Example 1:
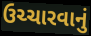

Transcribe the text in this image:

ઉચ્ચારવાનું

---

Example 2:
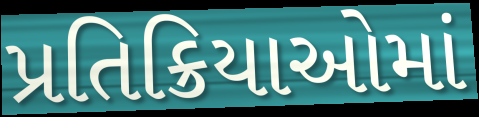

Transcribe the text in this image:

પ્રતિક્રિયાઓમાં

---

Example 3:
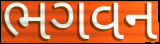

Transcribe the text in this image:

ભગવન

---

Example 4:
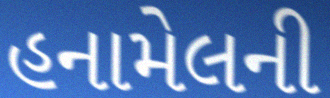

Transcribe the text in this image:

હનામેલની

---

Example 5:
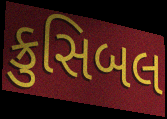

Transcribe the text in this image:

ક્રુસિબલ